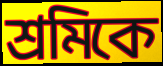
শ্রমিকে